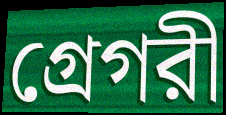
গ্রেগরী